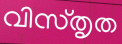
വിസ്തൃത